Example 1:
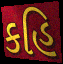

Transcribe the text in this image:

કહિ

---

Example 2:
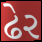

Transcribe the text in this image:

ઢેર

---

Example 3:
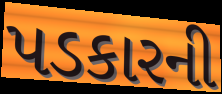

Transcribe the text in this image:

પડકારની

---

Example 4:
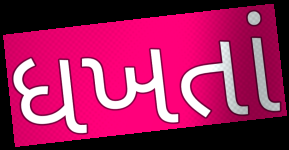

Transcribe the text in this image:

ધખતાં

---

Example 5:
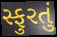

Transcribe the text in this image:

સ્ફુરતું